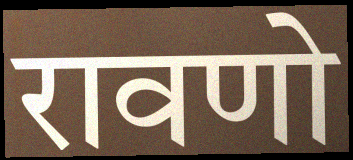
रावणो